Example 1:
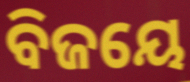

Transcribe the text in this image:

ବିଜୟେ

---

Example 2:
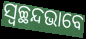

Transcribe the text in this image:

ସ୍ୱଚ୍ଛନ୍ଦଭାବେ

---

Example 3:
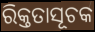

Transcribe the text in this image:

ରିକ୍ତତାସୂଚକ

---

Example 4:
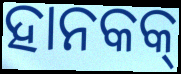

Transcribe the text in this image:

ହାନକକ୍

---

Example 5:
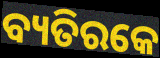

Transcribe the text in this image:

ବ୍ୟତିରକେ